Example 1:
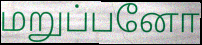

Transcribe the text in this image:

மறுப்பனோ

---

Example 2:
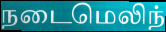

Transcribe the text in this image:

நடைமெலிந்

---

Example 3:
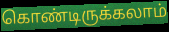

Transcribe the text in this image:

கொண்டிருக்கலாம்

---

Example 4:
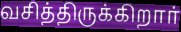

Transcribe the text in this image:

வசித்திருக்கிறார்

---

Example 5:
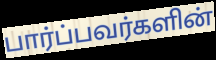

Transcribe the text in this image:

பார்ப்பவர்களின்